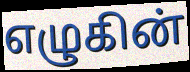
எழுகின்